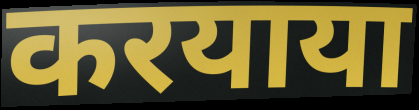
करयाया